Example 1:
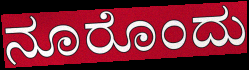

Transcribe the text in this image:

ನೂರೊಂದು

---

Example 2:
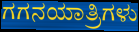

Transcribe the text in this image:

ಗಗನಯಾತ್ರಿಗಳು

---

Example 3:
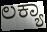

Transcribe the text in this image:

ಲಕ್ಯಾ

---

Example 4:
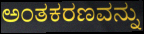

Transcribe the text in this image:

ಅಂತಕರಣವನ್ನು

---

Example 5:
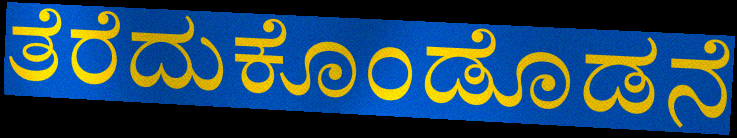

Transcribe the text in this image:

ತೆರೆದುಕೊಂಡೊಡನೆ